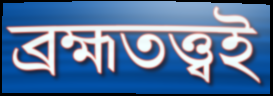
ব্রহ্মতত্ত্বই